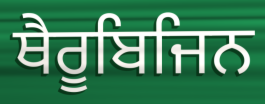
ਥੈਰੂਬਿਜਿਨ